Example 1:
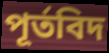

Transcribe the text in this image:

পূর্তবিদ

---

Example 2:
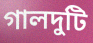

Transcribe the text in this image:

গালদুটি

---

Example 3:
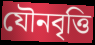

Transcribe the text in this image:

যৌনবৃত্তি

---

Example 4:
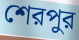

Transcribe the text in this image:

শেরপুর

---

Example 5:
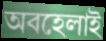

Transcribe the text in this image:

অবহেলাই